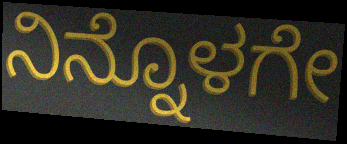
ನಿನ್ನೊಳಗೇ